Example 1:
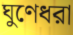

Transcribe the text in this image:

ঘুণেধরা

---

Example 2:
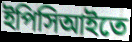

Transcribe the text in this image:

ইপিসিআইতে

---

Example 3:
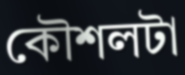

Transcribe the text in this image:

কৌশলটা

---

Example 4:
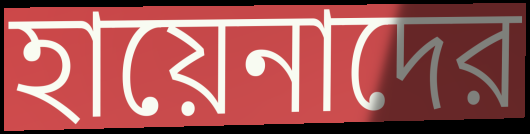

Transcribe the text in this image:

হায়েনাদের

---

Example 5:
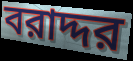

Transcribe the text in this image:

বরাদ্দর